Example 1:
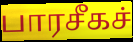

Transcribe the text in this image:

பாரசீகச்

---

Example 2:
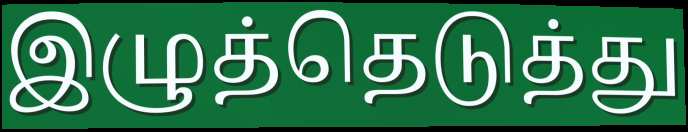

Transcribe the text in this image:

இழுத்தெடுத்து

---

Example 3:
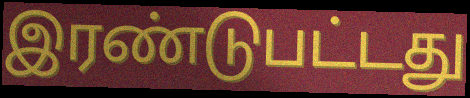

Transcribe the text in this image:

இரண்டுபட்டது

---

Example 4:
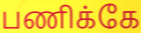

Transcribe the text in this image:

பணிக்கே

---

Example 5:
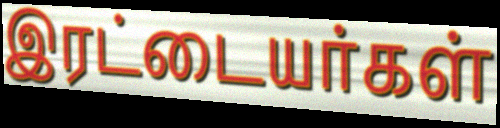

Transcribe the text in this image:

இரட்டையர்கள்